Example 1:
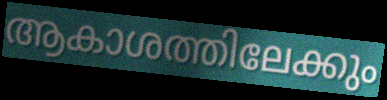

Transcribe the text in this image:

ആകാശത്തിലേക്കും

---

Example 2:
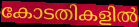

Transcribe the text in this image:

കോടതികളിൽ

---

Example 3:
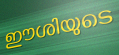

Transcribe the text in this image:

ഈശിയുടെ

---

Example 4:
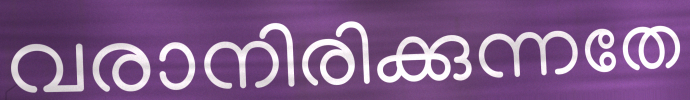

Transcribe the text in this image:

വരാനിരിക്കുന്നതേ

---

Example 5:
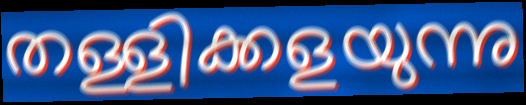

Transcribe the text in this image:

തള്ളിക്കളയുന്നു